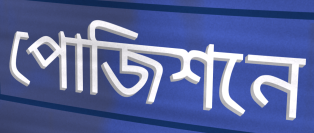
পোজিশনে